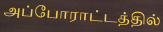
அப்போராட்டத்தில்